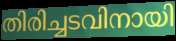
തിരിച്ചടവിനായി